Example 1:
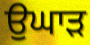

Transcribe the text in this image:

ਉਘਾੜ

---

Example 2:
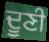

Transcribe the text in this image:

ਦੂਣੀ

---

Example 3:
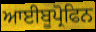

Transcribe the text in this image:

ਆਈਬੂਪ੍ਰੋਫਿਨ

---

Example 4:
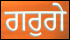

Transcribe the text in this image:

ਗਰੁਗੇ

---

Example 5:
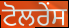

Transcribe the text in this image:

ਟੋਲਰੇਂਸ